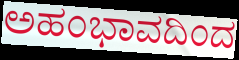
ಅಹಂಭಾವದಿಂದ